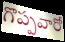
గొప్పవారో